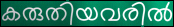
കരുതിയവരിൽ